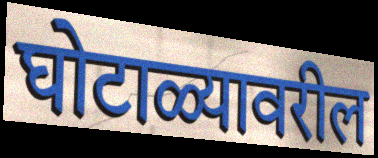
घोटाळ्यावरील